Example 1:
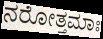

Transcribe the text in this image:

ನರೋತ್ತಮಾಃ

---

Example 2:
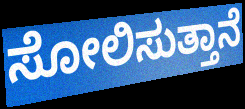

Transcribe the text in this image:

ಸೋಲಿಸುತ್ತಾನೆ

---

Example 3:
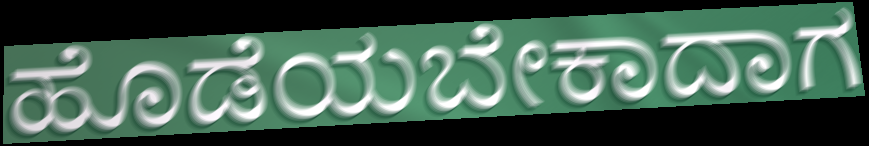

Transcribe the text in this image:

ಹೊಡೆಯಬೇಕಾದಾಗ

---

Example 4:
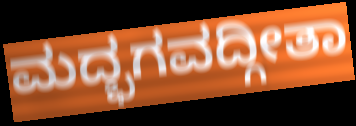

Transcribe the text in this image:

ಮದ್ಭಗವದ್ಗೀತಾ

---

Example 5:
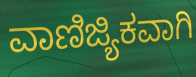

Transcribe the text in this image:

ವಾಣಿಜ್ಯಿಕವಾಗಿ